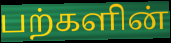
பற்களின்